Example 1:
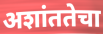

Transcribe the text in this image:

अशांततेचा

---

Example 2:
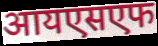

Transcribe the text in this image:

आयएसएफ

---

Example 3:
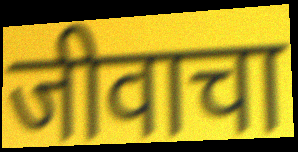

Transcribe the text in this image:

जीवाचा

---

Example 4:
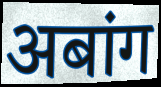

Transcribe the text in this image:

अबांग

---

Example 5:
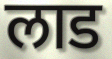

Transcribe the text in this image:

लाड